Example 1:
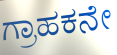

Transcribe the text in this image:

ಗ್ರಾಹಕನೇ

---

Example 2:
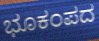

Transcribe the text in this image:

ಭೂಕಂಪದ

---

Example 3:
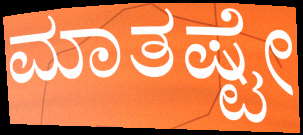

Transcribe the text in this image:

ಮಾತಷ್ಟೇ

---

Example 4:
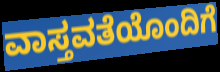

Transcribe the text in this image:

ವಾಸ್ತವತೆಯೊಂದಿಗೆ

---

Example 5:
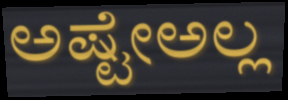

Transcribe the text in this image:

ಅಷ್ಟೇಅಲ್ಲ